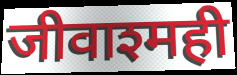
जीवाश्मही